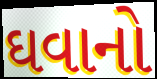
ઘવાનો